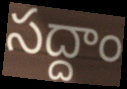
సద్దాం